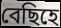
বেছিহে